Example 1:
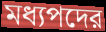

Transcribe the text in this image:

মধ্যপদের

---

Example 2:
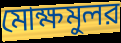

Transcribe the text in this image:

মোক্ষমুলর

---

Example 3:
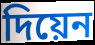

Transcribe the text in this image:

দিয়েন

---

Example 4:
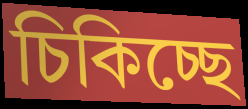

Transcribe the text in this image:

চিকিচ্ছে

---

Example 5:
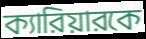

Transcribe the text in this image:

ক্যারিয়ারকে